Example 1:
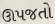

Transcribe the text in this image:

ઊપજતો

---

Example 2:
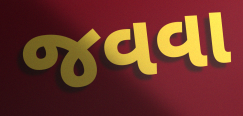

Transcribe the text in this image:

જવવા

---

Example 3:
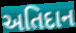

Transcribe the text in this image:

અતિદાન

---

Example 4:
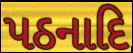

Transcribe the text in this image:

પઠનાદિ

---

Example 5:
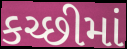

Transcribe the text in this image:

કચ્છીમાં